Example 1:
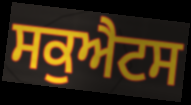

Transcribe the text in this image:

ਸਕੁਐਟਸ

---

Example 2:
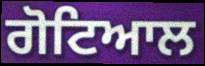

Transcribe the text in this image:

ਗੋਟਿਆਲ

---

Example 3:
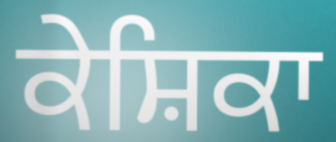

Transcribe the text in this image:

ਕੇਸ਼ਿਕਾ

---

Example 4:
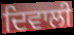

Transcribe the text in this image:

ਦਿਵਾਲੀ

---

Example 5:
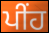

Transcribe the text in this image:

ਪੀਂਹ